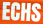
ECHS